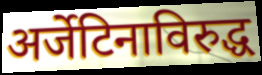
अर्जेटिनाविरुद्ध